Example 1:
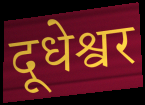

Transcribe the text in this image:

दूधेश्वर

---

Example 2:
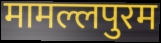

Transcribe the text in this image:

मामल्लपुरम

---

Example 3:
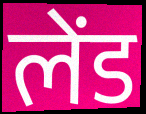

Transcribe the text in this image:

लेंड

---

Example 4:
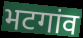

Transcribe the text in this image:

भटगांव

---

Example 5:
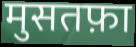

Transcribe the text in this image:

मुसतफ़ा